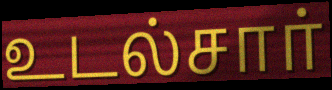
உடல்சார்